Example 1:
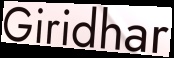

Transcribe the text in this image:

Giridhar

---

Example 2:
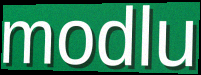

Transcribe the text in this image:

modlu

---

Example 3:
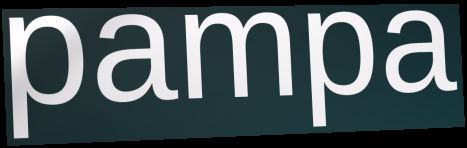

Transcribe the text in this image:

pampa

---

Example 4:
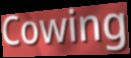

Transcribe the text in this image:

Cowing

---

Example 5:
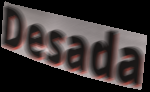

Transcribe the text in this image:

Desada